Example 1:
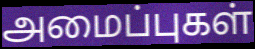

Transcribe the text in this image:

அமைப்புகள்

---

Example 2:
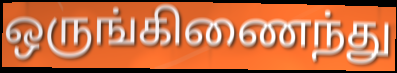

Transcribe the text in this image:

ஒருங்கிணைந்து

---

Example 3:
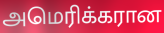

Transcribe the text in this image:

அமெரிக்கரான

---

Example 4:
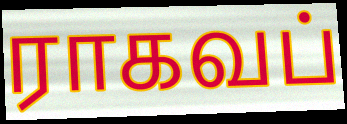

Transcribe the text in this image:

ராகவப்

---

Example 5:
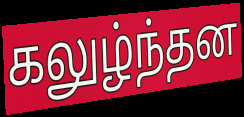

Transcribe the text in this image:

கலுழ்ந்தன